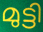
മുട്ടി